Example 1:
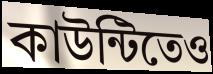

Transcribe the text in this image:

কাউন্টিতেও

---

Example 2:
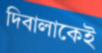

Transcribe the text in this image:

দিবালাকেই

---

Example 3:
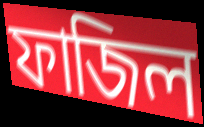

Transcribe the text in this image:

ফাজিল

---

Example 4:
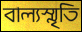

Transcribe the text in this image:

বাল্যস্মৃতি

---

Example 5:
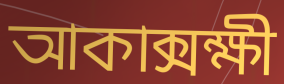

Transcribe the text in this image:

আকাক্সক্ষী